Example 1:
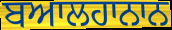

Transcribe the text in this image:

ਬਆਲਹਾਨਾਨ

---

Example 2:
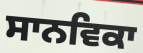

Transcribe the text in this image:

ਸਾਨਵਿਕਾ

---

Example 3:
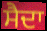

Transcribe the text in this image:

ਸੈਦਾ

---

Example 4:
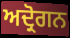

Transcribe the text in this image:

ਅਦ੍ਰੋਗਨ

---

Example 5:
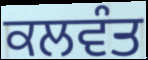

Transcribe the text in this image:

ਕਲਵੰਤ